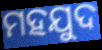
ମହଯୁଦ